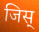
जिस्